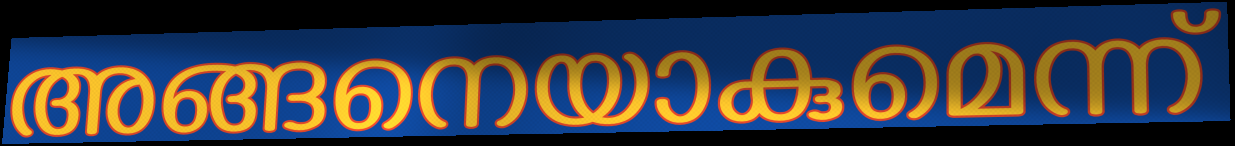
അങ്ങനെയാകുമെന്ന്